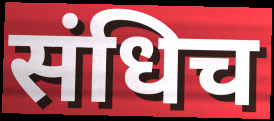
संधिच